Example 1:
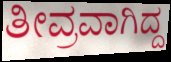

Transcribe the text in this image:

ತೀವ್ರವಾಗಿದ್ದ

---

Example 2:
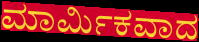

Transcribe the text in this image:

ಮಾರ್ಮಿಕವಾದ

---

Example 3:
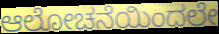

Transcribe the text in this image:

ಆಲೋಚನೆಯಿಂದಲೇ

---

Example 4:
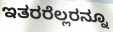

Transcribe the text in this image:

ಇತರರೆಲ್ಲರನ್ನೂ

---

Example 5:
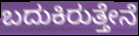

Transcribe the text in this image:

ಬದುಕಿರುತ್ತೇನೆ